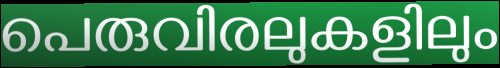
പെരുവിരലുകളിലും